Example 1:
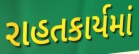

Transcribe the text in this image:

રાહતકાર્યમાં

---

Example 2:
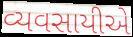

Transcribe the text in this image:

વ્યવસાયીએ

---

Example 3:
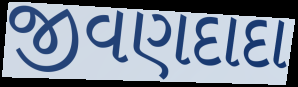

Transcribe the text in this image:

જીવણદાદા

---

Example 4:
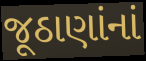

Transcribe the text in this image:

જૂઠાણાંનાં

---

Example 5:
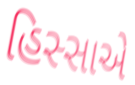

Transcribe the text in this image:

હિસ્સાએ